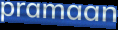
pramaan